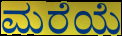
ಮರೆಯೆ